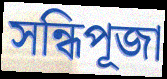
সন্ধিপূজা